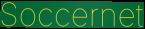
Soccernet